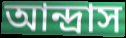
আন্দ্রাস